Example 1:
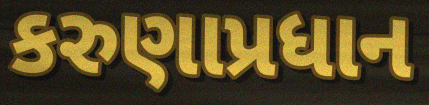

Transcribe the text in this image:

કરુણાપ્રધાન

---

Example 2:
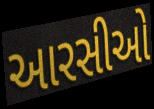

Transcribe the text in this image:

આરસીઓ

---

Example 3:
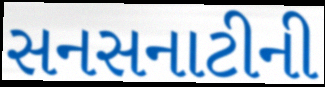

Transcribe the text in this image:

સનસનાટીની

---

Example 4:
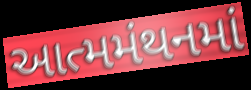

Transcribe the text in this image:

આત્મમંથનમાં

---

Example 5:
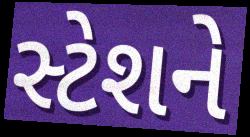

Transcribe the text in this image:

સ્ટેશને